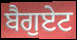
ਬੈਗੁਏਟ